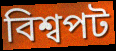
বিশ্বপট